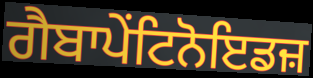
ਗੈਬਾਪੇਂਟਿਨੋਇਡਜ਼